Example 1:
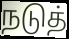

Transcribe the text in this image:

நடுத்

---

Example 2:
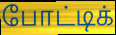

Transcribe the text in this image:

போட்டிக்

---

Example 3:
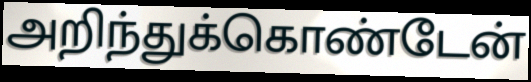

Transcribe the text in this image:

அறிந்துக்கொண்டேன்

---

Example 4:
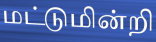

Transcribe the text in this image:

மட்டுமின்றி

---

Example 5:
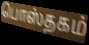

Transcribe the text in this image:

பொஸ்தகம்